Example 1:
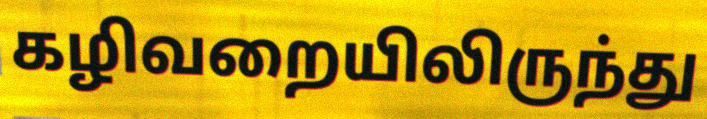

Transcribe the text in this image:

கழிவறையிலிருந்து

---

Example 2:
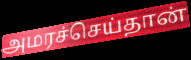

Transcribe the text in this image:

அமரச்செய்தான்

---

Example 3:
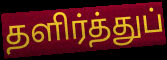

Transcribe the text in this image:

தளிர்த்துப்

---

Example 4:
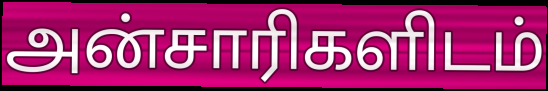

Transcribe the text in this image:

அன்சாரிகளிடம்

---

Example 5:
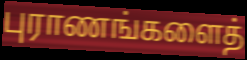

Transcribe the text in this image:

புராணங்களைத்